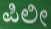
ಪಿಲೀ